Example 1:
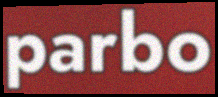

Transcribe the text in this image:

parbo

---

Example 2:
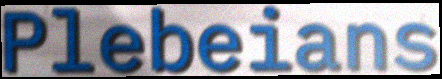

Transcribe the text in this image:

Plebeians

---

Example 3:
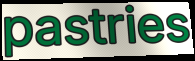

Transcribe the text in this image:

pastries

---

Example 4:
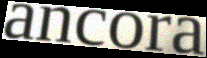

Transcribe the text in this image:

ancora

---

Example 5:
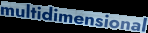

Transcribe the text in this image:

multidimensional